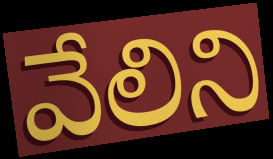
వేలిని